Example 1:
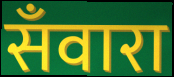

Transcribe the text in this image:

सँवारा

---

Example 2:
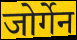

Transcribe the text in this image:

जोर्गेन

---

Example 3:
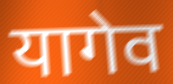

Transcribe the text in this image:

यागेव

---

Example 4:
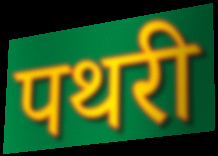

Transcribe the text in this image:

पथरी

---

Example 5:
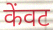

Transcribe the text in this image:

केंवट